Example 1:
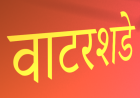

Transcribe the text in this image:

वाटरशडे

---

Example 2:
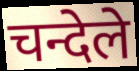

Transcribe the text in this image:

चन्देले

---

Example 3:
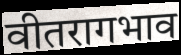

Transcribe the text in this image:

वीतरागभाव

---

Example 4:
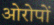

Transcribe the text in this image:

ओरोपों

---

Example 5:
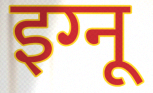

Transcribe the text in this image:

इग्‍नू